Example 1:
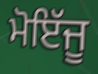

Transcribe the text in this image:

ਮੋਇੱਜੂ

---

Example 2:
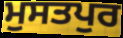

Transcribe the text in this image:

ਮੁਸਤਪੁਰ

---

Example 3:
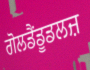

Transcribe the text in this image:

ਗੋਲਡੈਂਡੂਡਲਜ਼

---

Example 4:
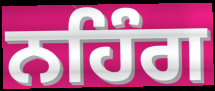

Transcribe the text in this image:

ਨਹਿੰਗ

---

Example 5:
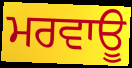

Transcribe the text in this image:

ਮਰਵਾਊ